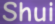
Shui